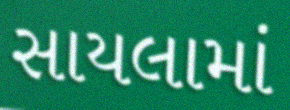
સાયલામાં